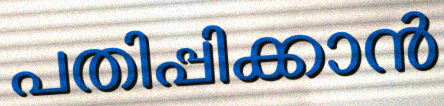
പതിപ്പിക്കാൻ